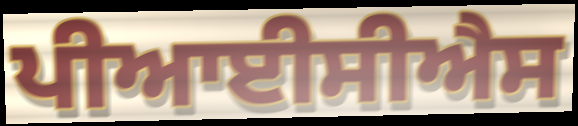
ਪੀਆਈਸੀਐਸ